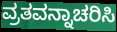
ವ್ರತವನ್ನಾಚರಿಸಿ